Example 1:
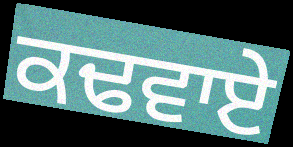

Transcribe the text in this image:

ਕਢਵਾਏ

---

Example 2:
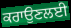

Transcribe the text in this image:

ਕਰਾਉਣਲਈ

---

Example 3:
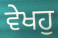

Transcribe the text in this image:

ਵੇਖਹੁ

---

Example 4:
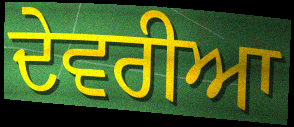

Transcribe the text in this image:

ਦੇਵਰੀਆ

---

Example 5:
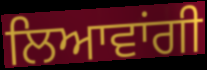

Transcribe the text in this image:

ਲਿਆਵਾਂਗੀ